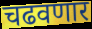
चढवणार